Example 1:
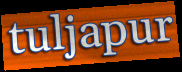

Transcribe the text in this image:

tuljapur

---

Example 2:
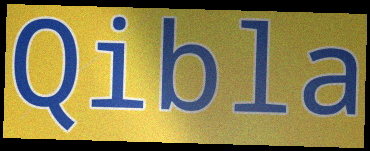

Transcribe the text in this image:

Qibla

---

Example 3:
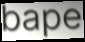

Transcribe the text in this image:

bape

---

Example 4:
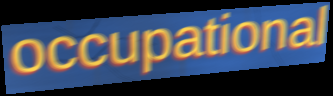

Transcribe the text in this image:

occupational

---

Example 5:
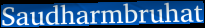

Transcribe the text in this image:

Saudharmbruhat